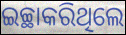
ଇଚ୍ଛାକରିଥିଲେ